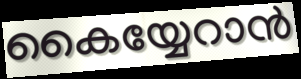
കൈയ്യേറാൻ